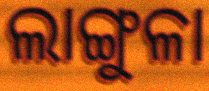
ଲାଙ୍ଗୁଳା